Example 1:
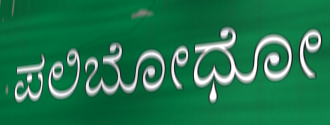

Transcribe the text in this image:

ಪಲಿಬೋಧೋ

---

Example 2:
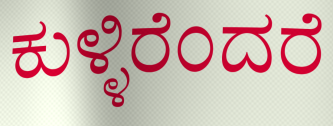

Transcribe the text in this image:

ಕುಳ್ಳಿರೆಂದರೆ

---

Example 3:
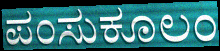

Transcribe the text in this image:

ಪಂಸುಕೂಲಂ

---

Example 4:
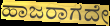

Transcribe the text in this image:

ಹಾಜರಾಗದೇ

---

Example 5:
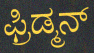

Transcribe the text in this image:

ಫ್ರಿಡ್ಮನ್